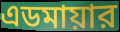
এডমায়ার